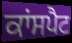
ਕਾਂਸਪੈਟ